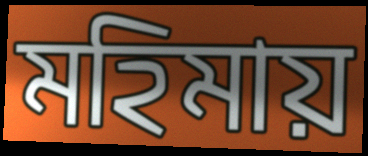
মহিমায়